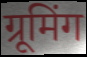
ग्रूमिंग